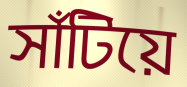
সাঁটিয়ে